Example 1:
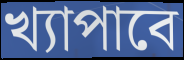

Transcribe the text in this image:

খ্যাপাবে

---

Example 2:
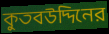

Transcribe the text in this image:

কুতবউদ্দিনের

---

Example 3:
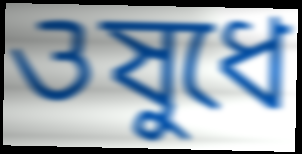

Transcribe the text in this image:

ওষুধে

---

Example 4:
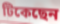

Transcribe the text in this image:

টিকেছেন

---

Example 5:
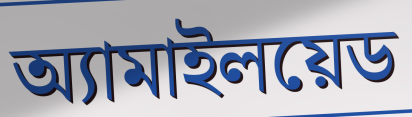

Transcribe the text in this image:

অ্যামাইলয়েড